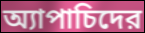
অ্যাপাচিদের